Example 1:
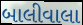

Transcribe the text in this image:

બાલીવાલા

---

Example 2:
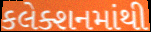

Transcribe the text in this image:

કલેક્શનમાંથી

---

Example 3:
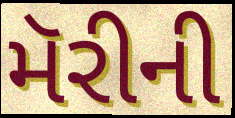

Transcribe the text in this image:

મૅરીની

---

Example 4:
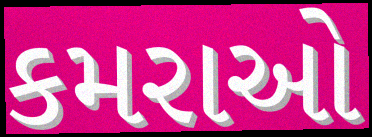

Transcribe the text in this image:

કમરાઓ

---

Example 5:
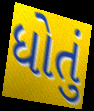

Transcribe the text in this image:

ધોતું